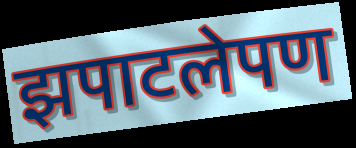
झपाटलेपण